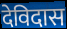
देविदास